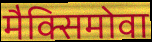
मैक्सिमोवा